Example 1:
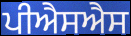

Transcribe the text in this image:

ਪੀਐਸਐਸ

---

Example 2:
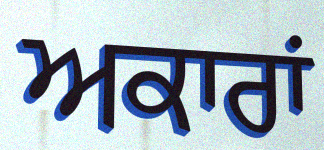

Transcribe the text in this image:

ਅਕਾਰਾਂ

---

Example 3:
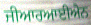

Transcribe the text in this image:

ਜੀਆਰਆਈਐਨ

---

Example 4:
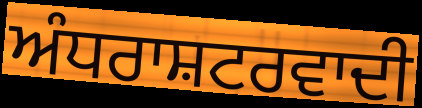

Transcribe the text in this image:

ਅੰਧਰਾਸ਼ਟਰਵਾਦੀ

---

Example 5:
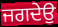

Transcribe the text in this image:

ਜਗਦੇਉ